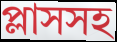
প্লাসসহ